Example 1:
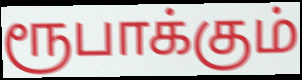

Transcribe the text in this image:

ரூபாக்கும்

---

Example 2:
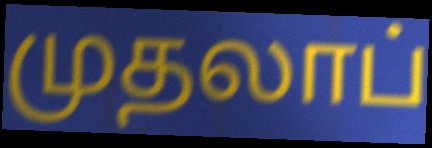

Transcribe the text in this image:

முதலாப்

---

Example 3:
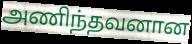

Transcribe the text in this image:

அணிந்தவனான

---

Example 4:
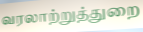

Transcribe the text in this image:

வரலாற்றுத்துறை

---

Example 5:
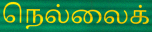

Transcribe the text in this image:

நெல்லைக்